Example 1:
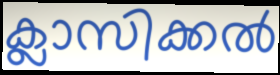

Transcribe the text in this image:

ക്ലാസിക്കൽ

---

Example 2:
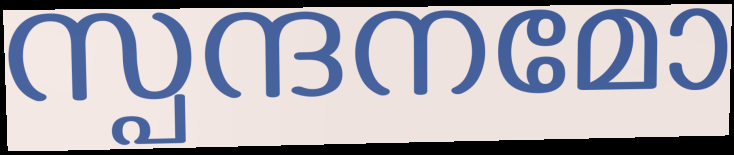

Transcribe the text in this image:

സ്പന്ദനമോ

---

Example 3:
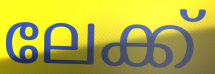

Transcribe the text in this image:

ലേക്ക്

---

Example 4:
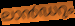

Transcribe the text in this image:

ലാൻഡറും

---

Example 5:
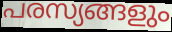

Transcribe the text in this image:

പരസ്യങ്ങളും